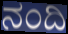
ನಂದಿ